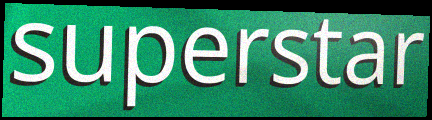
superstar